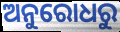
ଅନୁରୋଧରୁ